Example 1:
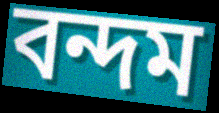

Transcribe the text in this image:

বন্দম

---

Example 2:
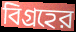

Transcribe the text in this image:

বিগ্রহের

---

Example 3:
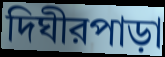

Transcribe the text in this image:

দিঘীরপাড়া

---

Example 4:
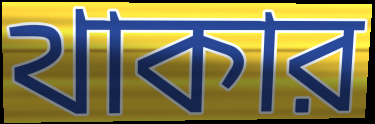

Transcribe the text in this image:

থাকার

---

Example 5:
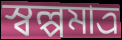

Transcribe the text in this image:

স্বল্পমাত্র